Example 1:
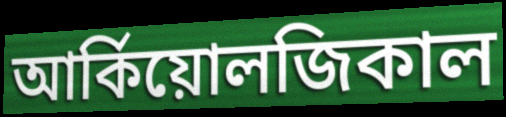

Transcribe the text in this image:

আর্কিয়োলজিকাল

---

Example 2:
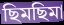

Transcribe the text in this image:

ছিমছিমা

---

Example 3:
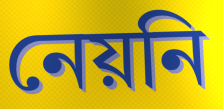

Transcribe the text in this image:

নেয়নি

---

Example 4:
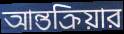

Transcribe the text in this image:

আন্তক্রিয়ার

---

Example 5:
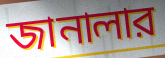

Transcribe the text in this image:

জানালার